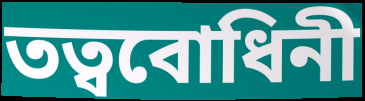
তত্ববোধিনী